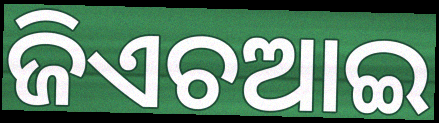
ଜିଏଚଆଇ